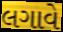
લગાવે